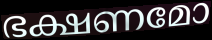
ഭക്ഷണമോ